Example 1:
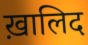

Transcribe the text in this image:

ख़ालिद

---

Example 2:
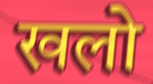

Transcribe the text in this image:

खलो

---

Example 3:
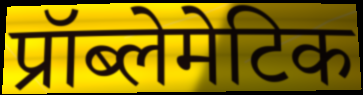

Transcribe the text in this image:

प्रॉब्लेमेटिक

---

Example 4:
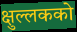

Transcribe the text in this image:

क्षुल्लकको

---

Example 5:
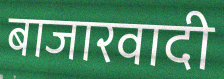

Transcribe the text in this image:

बाजारवादी